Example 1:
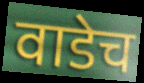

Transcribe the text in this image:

वाडेच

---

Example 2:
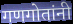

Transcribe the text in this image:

गणगोतांनी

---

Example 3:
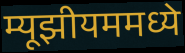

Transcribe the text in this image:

म्यूझीयममध्ये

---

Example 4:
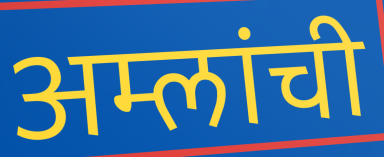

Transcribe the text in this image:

अम्‍लांची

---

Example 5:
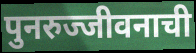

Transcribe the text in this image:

पुनरुज्जीवनाची